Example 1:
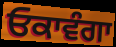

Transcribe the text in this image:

ਓਕਾਵੰਗਾ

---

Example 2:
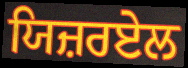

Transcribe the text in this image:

ਯਿਜ਼ਰਏਲ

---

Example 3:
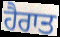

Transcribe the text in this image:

ਹੈਰਾਤ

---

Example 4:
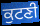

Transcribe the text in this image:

ਕੁਟਣੀ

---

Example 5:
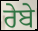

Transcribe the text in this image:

ਰੇਬੇ